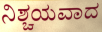
ನಿಶ್ಚಯವಾದ